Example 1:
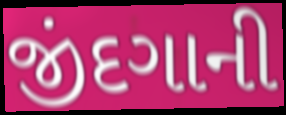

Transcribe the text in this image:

જીંદગાની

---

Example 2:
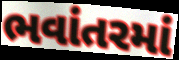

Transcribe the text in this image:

ભવાંતરમાં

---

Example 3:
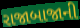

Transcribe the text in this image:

રાજાબાજાની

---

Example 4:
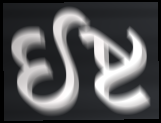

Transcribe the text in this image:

ઈષ્ટ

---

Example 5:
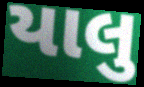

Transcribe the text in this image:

યાલુ